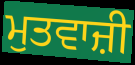
ਮੁਤਵਾਜ਼ੀ